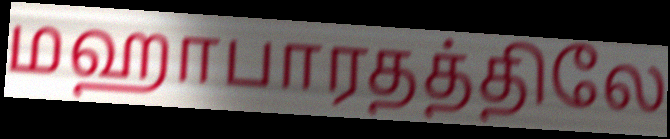
மஹாபாரதத்திலே